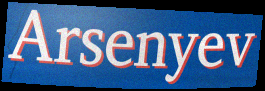
Arsenyev